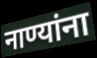
नाण्यांना